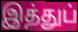
இத்துப்